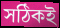
সঠিকই